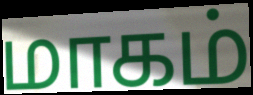
மாகம்